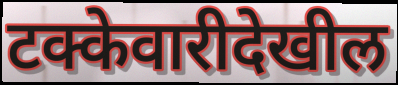
टक्केवारीदेखील